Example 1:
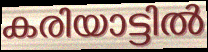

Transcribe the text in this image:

കരിയാട്ടിൽ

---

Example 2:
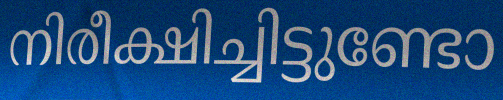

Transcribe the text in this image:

നിരീക്ഷിച്ചിട്ടുണ്ടോ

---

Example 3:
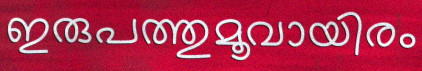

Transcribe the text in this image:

ഇരുപത്തുമൂവായിരം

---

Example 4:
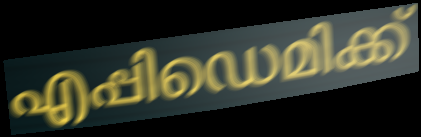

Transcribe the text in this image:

എപ്പിഡെമിക്ക്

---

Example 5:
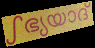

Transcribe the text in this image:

ഽഭ്യയാദ്